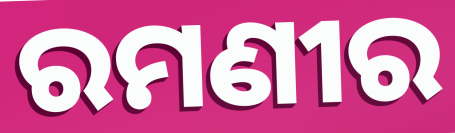
ରମଣୀର